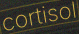
cortisol